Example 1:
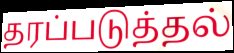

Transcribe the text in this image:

தரப்படுத்தல்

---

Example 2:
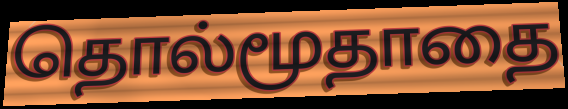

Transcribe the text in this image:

தொல்மூதாதை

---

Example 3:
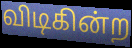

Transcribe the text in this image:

விடிகின்ற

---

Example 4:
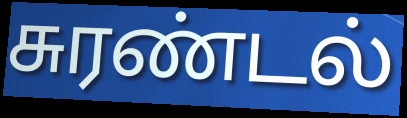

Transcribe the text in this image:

சுரண்டல்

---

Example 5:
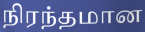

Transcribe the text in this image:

நிரந்தமான